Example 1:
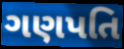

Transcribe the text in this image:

ગણપતિ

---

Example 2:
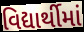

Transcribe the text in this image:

વિદ્યાર્થીમાં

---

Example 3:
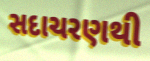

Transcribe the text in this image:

સદાચરણથી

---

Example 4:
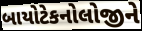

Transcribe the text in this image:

બાયોટેકનોલોજીને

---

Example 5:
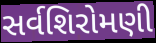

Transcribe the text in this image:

સર્વશિરોમણી